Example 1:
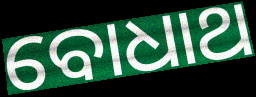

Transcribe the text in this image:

ବୋଧାଥ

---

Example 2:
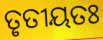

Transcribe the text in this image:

ତୃତୀୟତଃ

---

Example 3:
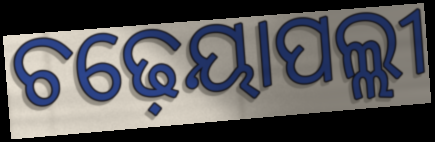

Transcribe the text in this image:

ଚଢ଼େୟାପଲ୍ଲୀ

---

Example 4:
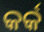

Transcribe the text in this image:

କର୍କ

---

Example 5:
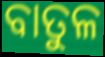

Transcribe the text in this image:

ବାତୁଳ